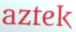
aztek